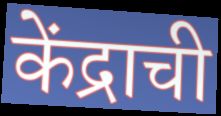
केंद्राची